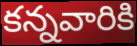
కన్నవారికి